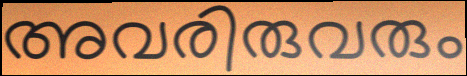
അവരിരുവരും